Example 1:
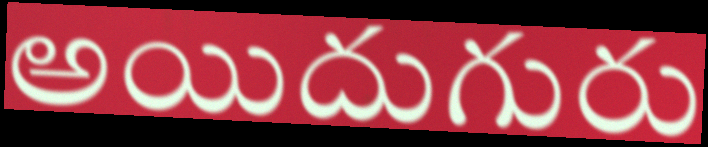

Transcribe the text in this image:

అయిదుగురు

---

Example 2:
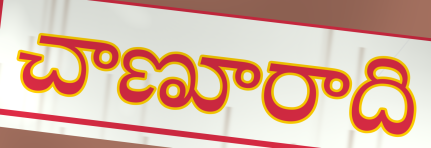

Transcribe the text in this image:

చాణూరాది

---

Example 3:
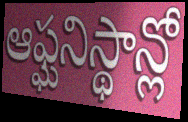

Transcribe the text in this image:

ఆఫ్ఘనిస్థాన్లో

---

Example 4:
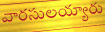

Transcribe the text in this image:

వారసులయ్యారు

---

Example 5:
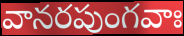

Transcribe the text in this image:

వానరపుంగవాః